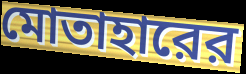
মোতাহারের